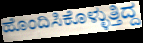
ಹೊಂದಿಸಿಕೊಳ್ಳುತ್ತಿದ್ದ